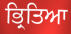
ਭ੍ਰਿਤਿਆ